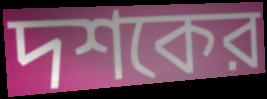
দশকের